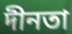
দীনতা